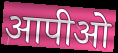
आपीओ